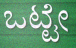
ಒಟ್ಟೇ